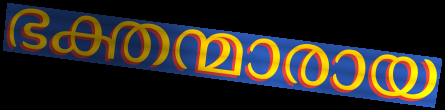
ഭക്തന്മാരായ